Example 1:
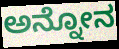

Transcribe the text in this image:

ಅನ್ನೋನ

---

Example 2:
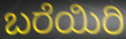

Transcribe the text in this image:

ಬರೆಯಿರಿ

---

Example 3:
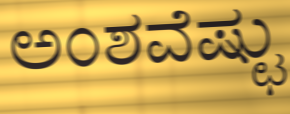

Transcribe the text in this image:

ಅಂಶವೆಷ್ಟು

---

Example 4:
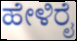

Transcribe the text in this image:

ಹೇಳಿರೈ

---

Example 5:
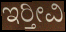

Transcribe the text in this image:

ಇರ‍್ತೀವಿ